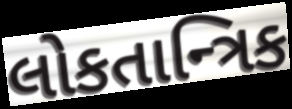
લોકતાન્ત્રિક